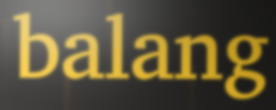
balang